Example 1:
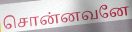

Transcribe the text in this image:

சொன்னவனே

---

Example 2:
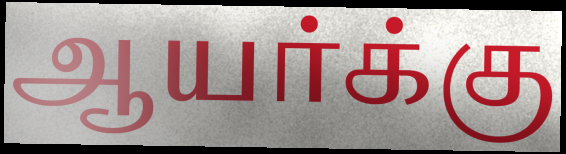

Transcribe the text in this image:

ஆயர்க்கு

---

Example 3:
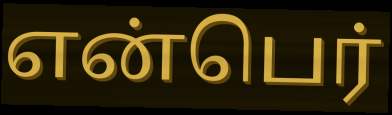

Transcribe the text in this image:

என்பெர்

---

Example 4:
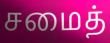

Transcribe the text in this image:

சமைத்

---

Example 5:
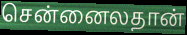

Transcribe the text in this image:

சென்னைலதான்